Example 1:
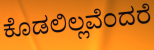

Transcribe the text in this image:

ಕೊಡಲಿಲ್ಲವೆಂದರೆ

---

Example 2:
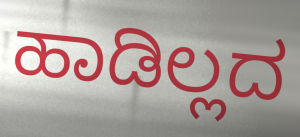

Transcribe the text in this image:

ಹಾಡಿಲ್ಲದ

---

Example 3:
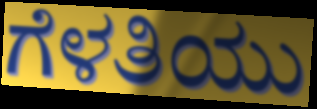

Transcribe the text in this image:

ಗೆಳತಿಯು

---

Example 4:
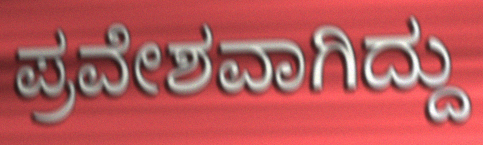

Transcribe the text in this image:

ಪ್ರವೇಶವಾಗಿದ್ದು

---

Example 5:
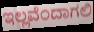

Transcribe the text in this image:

ಇಲ್ಲವೆಂದಾಗಲಿ